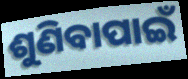
ଶୁଣିବାପାଇଁ